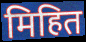
मिहित